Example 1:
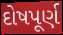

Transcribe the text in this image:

દોષપૂર્ણ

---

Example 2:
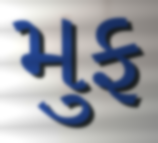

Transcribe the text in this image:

મુફ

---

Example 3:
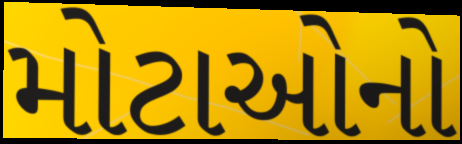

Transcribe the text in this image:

મોટાઓનો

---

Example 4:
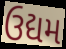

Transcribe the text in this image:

ઉદ્યમ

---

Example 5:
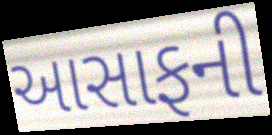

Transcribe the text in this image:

આસાફની